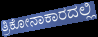
ತ್ರಿಕೋನಾಕಾರದಲ್ಲಿ